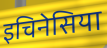
इचिनेसिया